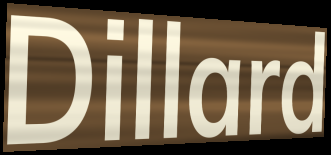
Dillard